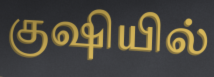
குஷியில்